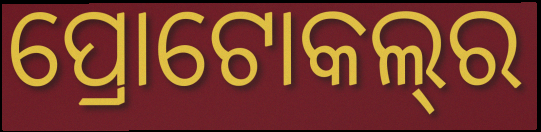
ପ୍ରୋଟୋକଲ୍‌ର